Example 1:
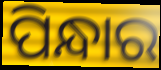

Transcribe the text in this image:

ପିନ୍ଧାର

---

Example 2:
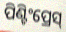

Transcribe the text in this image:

ପିଣ୍ଟିଂପ୍ରେସ୍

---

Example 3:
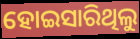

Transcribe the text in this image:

ହୋଇସାରିଥିଲୁ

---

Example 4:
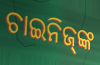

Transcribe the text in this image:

ଚାଇନିଜ୍‌ଙ୍କ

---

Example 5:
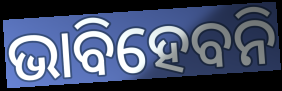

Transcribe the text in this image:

ଭାବିହେବନି